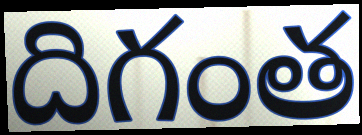
దిగంత